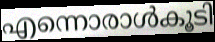
എന്നൊരാൾകൂടി